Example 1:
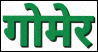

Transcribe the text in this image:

गोमेर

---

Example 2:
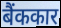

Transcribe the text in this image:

बैंककार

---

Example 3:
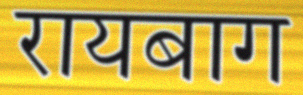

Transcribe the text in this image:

रायबाग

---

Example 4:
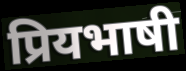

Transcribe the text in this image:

प्रियभाषी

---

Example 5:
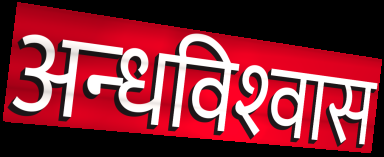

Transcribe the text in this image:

अन्‍धविश्‍वास